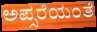
ಅಪ್ಸರೆಯಂತೆ